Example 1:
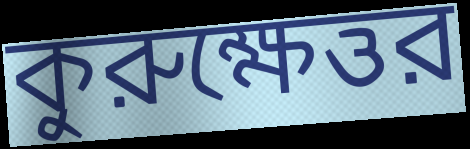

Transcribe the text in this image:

কুরুক্ষেত্তর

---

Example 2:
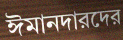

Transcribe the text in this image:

ঈমানদারদের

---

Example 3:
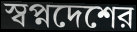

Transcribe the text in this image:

স্বপ্নদেশের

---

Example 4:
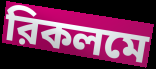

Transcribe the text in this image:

রিকলমে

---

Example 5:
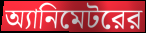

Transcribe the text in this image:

অ্যানিমেটরের